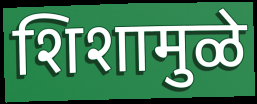
शिशामुळे